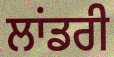
ਲਾਂਡਰੀ